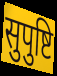
सुपुष्टि